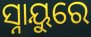
ସ୍ନାୟୁରେ